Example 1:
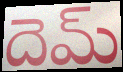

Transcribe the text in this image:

దెమ్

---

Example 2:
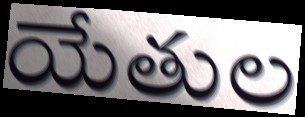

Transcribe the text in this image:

యేతుల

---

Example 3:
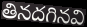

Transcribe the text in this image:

తినదగినవి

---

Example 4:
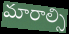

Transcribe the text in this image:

మారాల్సి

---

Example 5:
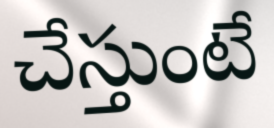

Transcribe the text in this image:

చేస్తుంటే